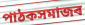
পাঠকসমাজৰ